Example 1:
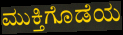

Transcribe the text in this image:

ಮುಕ್ತಿಗೊಡೆಯ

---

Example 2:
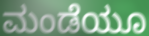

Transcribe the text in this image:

ಮಂಡೆಯೂ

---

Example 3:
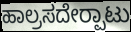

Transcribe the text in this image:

ಹಾಲ್ರಸದೇರ‍್ಪಾಟು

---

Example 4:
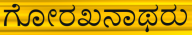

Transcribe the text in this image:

ಗೋರಖನಾಥರು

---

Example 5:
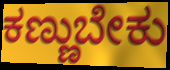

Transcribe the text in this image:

ಕಣ್ಣುಬೇಕು